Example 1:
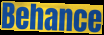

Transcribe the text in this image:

Behance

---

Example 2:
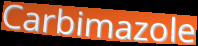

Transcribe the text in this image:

Carbimazole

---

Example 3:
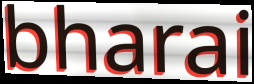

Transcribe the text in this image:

bharai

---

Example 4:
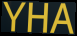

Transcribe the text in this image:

YHA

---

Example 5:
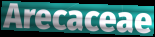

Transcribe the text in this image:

Arecaceae